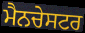
ਮੈਨਚੇਸਟਰ